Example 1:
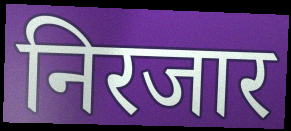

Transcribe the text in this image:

निरजार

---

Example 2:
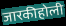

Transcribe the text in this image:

जारकीहोली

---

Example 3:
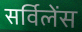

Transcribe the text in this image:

सर्विलेंस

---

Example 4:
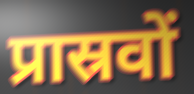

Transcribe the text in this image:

प्रास्रवों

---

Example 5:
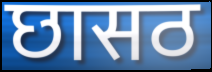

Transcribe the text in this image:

छासठ